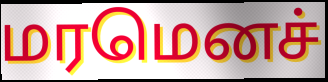
மரமெனச்